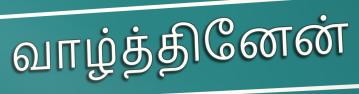
வாழ்த்தினேன்